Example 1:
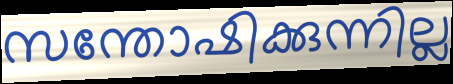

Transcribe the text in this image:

സന്തോഷിക്കുന്നില്ല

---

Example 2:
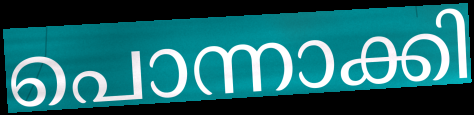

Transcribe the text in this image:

പൊന്നാക്കി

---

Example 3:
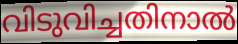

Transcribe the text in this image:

വിടുവിച്ചതിനാൽ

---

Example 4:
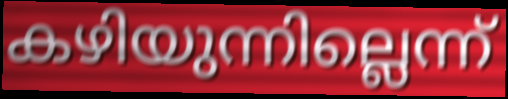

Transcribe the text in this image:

കഴിയുന്നില്ലെന്ന്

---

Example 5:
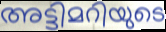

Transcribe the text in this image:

അട്ടിമറിയുടെ